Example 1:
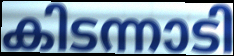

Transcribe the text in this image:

കിടന്നാടി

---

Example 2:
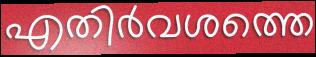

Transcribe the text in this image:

എതിർവശത്തെ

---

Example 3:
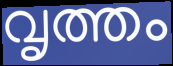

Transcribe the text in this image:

വൃത്തം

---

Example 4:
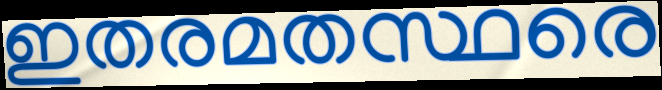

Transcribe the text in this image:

ഇതരമതസ്ഥരെ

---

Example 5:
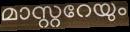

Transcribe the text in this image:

മാസ്റ്ററേയും